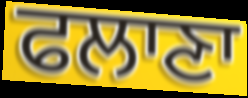
ਫਲਾਣਾ